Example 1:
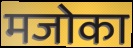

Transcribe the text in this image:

मजोका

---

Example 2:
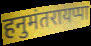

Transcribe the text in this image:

हनुमंतरायप्पा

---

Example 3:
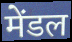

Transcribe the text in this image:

मेंडल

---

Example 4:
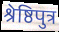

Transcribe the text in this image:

श्रेष्ठिपुत्र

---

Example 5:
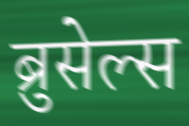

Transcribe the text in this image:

ब्रुसेल्स